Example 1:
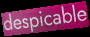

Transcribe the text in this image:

despicable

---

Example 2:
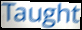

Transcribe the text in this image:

Taught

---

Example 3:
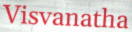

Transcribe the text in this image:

Visvanatha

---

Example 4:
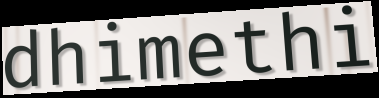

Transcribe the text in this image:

dhimethi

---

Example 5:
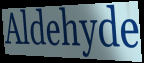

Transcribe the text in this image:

Aldehyde